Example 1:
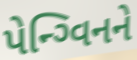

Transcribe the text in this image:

પેન્ગ્વિનને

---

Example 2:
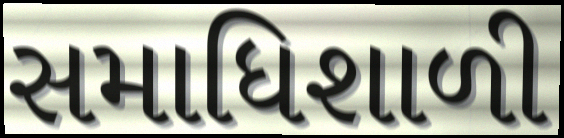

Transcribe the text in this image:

સમાધિશાળી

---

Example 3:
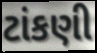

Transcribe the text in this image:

ટાંકણી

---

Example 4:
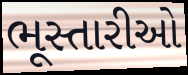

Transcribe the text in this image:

ભૂસ્તારીઓ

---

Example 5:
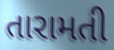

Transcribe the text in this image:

તારામતી